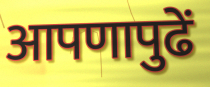
आपणापुढें